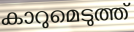
കാറുമെടുത്ത്